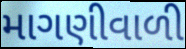
માગણીવાળી